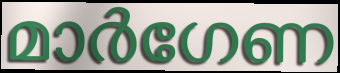
മാർഗേണ